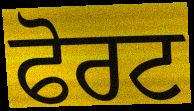
ਫੋਰਟ